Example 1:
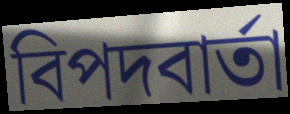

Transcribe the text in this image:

বিপদবার্তা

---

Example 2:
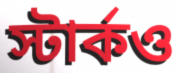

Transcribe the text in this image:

স্টার্কও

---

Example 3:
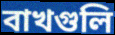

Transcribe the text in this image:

বাখগুলি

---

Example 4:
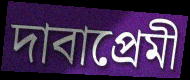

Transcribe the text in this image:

দাবাপ্রেমী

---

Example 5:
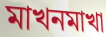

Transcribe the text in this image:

মাখনমাখা